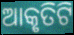
ଆକୃତିଟି